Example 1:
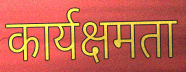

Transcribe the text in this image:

कार्यक्षमता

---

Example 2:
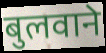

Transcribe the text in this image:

बुलवाने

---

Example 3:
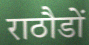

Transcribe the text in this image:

राठौडों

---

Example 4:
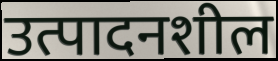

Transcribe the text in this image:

उत्पादनशील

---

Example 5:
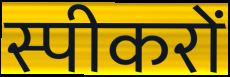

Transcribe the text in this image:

स्पीकरों